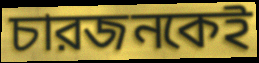
চারজনকেই